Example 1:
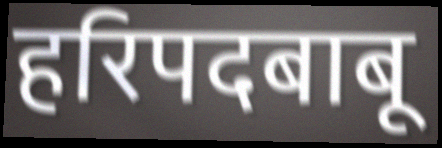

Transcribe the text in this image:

हरिपदबाबू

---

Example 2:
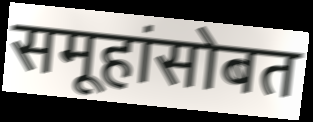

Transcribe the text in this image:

समूहांसोबत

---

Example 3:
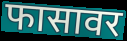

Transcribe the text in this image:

फासावर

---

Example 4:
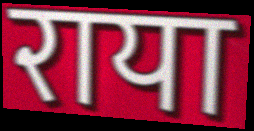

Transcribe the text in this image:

राया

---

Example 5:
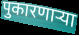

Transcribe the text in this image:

पुकारणार्‍या